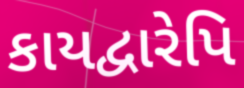
કાયદ્વારેપિ